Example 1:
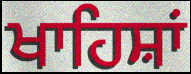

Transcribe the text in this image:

ਖਾਹਿਸ਼ਾਂ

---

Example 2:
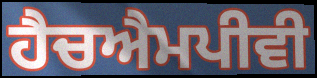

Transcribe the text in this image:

ਹੈਚਐਮਪੀਵੀ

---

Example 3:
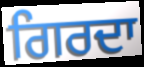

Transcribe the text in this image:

ਗਿਰਦਾ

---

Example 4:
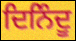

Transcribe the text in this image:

ਦਿਨਿੰਦੂ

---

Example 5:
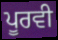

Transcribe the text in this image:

ਪੂਰਵੀ